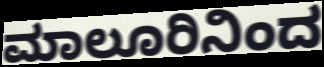
ಮಾಲೂರಿನಿಂದ